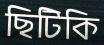
ছিটিকি